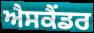
ਐਸਕੈਂਡਰ